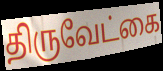
திருவேட்கை